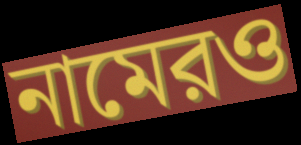
নামেরও